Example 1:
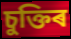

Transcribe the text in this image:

চুক্তিৰ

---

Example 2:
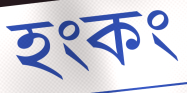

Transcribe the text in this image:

হংকং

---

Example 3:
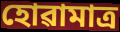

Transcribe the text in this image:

হোৱামাত্ৰ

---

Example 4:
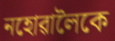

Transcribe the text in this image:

নহোৱালৈকে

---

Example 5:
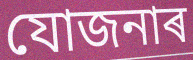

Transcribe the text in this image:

যোজনাৰ